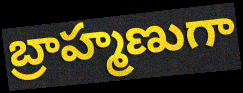
బ్రాహ్మణుగా